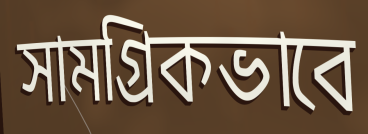
সামগ্ৰিকভাবে